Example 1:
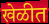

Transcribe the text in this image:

खेळीत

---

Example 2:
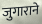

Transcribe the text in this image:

जुगाराने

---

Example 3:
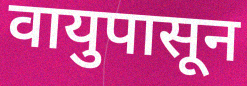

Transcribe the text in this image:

वायुपासून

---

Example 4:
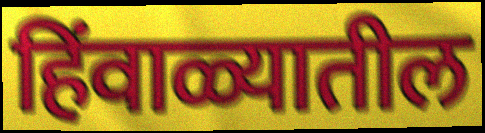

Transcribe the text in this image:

हिंवाळ्यातील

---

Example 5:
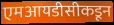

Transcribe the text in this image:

एमआयडीसीकडून